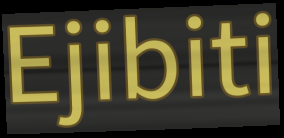
Ejibiti